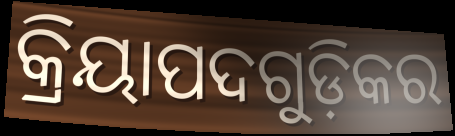
କ୍ରିୟାପଦଗୁଡ଼ିକର